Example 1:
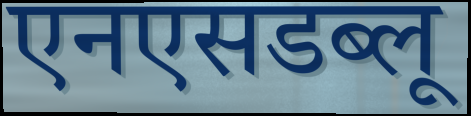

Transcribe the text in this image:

एनएसडब्लू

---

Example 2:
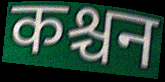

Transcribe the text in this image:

कश्चन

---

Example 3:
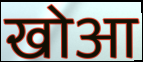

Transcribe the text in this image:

खोआ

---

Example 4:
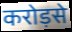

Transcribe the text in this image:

करोड़से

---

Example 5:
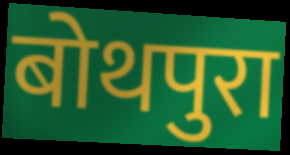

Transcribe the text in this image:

बोथपुरा